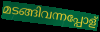
മടങ്ങിവന്നപ്പോള്